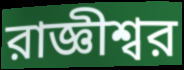
রাজ্ঞীশ্বর